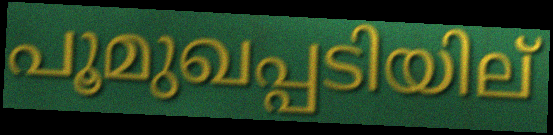
പൂമുഖപ്പടിയില്